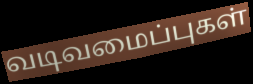
வடிவமைப்புகள்